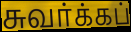
சுவர்க்கப்